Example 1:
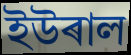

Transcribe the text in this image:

ইউৰাল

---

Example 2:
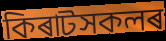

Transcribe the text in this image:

কিৰাটসকলৰ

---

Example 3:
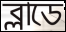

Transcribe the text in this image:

ব্লাডে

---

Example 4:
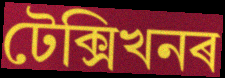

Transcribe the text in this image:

টেক্সিখনৰ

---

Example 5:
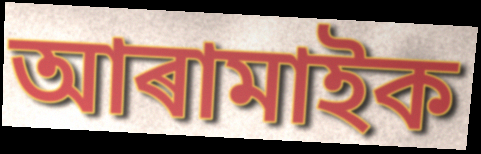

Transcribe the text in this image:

আৰামাইক